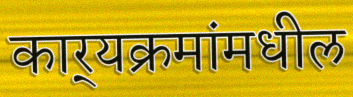
कार्यक्रमांमधील